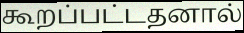
கூறப்பட்டதனால்